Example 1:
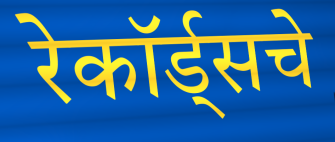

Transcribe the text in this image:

रेकॉर्ड्सचे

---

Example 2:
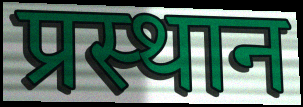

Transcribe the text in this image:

प्रस्थान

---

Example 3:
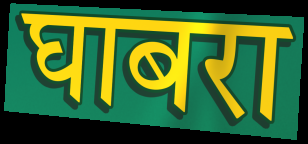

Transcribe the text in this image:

घाबरा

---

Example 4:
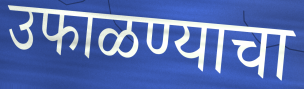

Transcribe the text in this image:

उफाळण्याचा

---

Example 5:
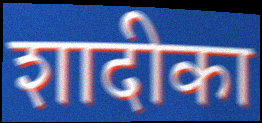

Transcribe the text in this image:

शादीका